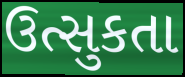
ઉત્સુકતા